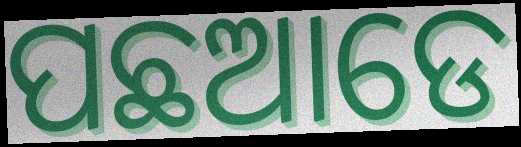
ପଛଆଡେ